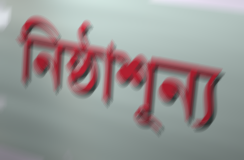
নিষ্ঠাশূন্য